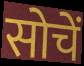
सोचें